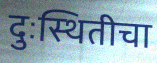
दुःस्थितीचा